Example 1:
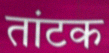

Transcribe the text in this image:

तांटक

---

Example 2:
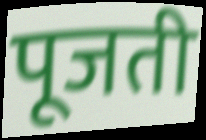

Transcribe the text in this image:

पूजती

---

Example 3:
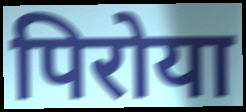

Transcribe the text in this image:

पिरोया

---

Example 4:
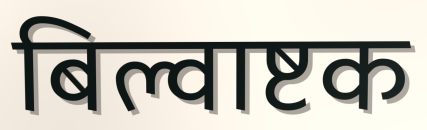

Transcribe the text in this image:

बिल्वाष्टक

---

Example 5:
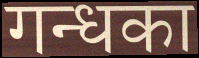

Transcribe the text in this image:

गन्धका